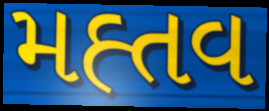
મહ્તવ